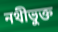
নথীভুক্ত